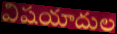
విషయాదుల